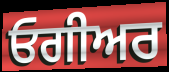
ਓਗੀਅਰ